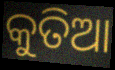
କୁତିଆ